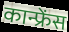
कान्फ्रेंस